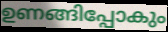
ഉണങ്ങിപ്പോകും